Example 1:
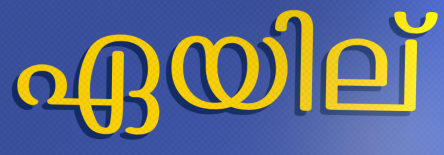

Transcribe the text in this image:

ഏയില്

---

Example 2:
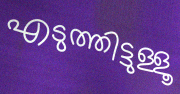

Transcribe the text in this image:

എടുത്തിട്ടുള്ളൂ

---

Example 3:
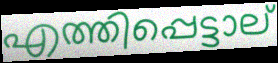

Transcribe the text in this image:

എത്തിപ്പെട്ടാല്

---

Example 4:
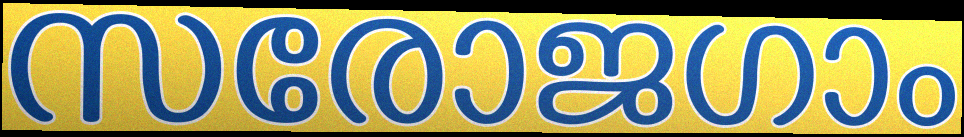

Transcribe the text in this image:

സരോജഗാം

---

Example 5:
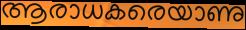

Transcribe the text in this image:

ആരാധകരെയാണു